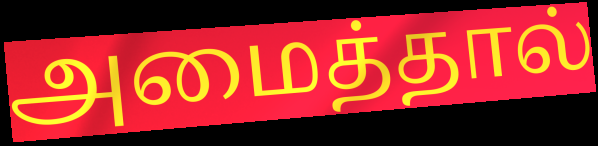
அமைத்தால்